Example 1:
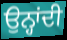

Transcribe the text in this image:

ਉਨ੍ਹਾਂਦੀ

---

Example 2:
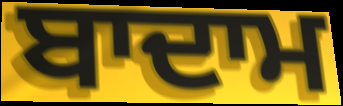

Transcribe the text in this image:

ਬਾਦਾਮ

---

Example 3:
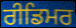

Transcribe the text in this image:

ਰੀਡਿਮਰ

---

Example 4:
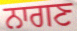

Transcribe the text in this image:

ਨਾਗਣ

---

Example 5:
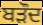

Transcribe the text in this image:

ਬੜੌਦ